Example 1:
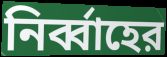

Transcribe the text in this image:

নির্ব্বাহের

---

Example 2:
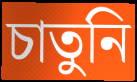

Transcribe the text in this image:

চাতুনি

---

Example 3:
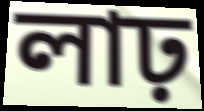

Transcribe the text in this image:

লাঢ়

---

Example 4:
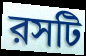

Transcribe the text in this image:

রসটি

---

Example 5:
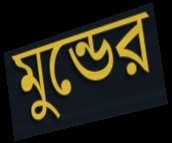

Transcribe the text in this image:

মুন্ডের